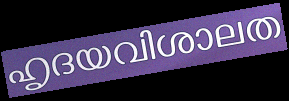
ഹൃദയവിശാലത